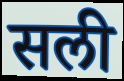
सली